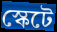
স্কেটে